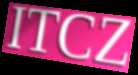
ITCZ